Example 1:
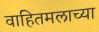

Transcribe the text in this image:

वाहितमलाच्या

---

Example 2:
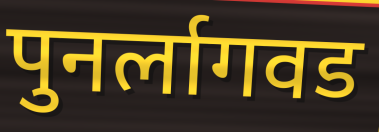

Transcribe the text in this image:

पुनर्लागवड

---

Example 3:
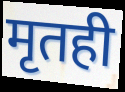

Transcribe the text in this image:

मृतही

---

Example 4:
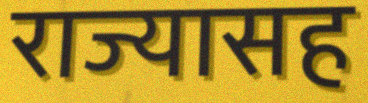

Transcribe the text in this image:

राज्यासह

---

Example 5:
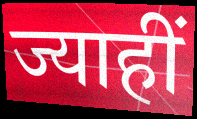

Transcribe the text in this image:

ज्याहीं